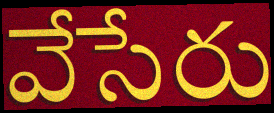
వేసేరు